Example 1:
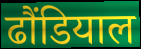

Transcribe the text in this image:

ढौंडियाल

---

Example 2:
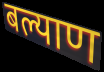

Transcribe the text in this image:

बल्याण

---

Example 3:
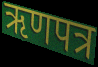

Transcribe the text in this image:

ऋणपत्र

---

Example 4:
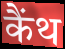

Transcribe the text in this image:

कैंथ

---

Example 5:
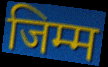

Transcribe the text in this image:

जिम्म